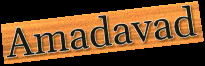
Amadavad